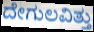
ದೇಗುಲವಿತ್ತು